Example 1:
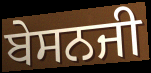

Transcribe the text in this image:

ਬੇਸਨਜੀ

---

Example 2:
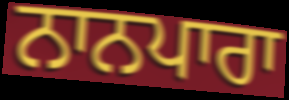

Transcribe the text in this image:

ਨਾਨਪਾਰਾ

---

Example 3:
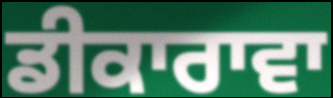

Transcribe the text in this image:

ਡੀਕਾਰਾਵਾ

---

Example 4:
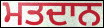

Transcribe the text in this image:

ਮਤਦਾਨ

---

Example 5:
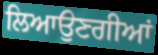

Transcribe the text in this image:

ਲਿਆਉਣਗੀਆਂ